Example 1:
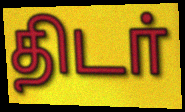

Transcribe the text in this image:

திடர்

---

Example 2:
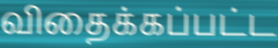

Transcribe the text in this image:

விதைக்கப்பட்ட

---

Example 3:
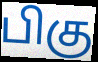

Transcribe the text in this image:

பிகு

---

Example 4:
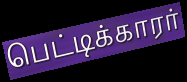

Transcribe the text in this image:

பெட்டிக்காரர்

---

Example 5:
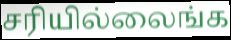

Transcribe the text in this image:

சரியில்லைங்க